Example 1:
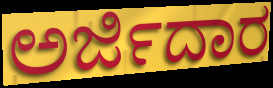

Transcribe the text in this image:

ಅರ್ಜಿದಾರ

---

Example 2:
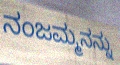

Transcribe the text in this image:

ನಂಜಮ್ಮನನ್ನು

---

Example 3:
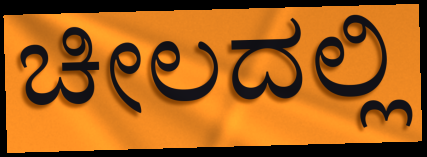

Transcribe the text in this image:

ಚೀಲದಲ್ಲಿ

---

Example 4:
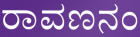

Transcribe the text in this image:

ರಾವಣನಂ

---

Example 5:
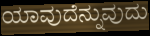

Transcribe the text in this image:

ಯಾವುದೆನ್ನುವುದು